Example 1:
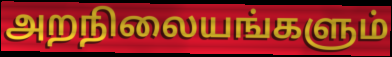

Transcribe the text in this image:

அறநிலையங்களும்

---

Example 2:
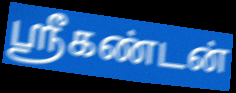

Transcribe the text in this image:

ஸ்ரீகண்டன்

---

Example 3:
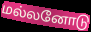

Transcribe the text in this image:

மல்லனோடு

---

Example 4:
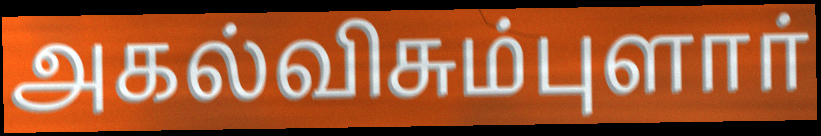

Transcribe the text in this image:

அகல்விசும்புளார்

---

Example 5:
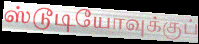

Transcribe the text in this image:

ஸ்டூடியோவுக்குப்